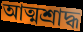
আত্মশ্রাদ্ধ